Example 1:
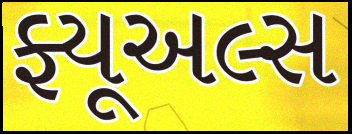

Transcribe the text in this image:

ફ્યૂઅલ્સ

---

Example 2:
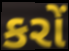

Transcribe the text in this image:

કરોં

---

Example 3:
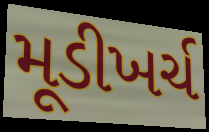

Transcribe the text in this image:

મૂડીખર્ચ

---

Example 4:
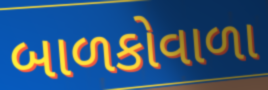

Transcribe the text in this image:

બાળકોવાળા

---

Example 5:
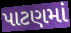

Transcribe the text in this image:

પાટણમાં